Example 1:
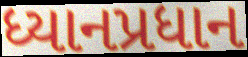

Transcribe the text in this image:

ધ્યાનપ્રધાન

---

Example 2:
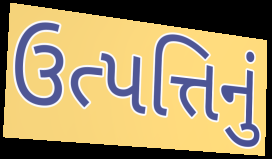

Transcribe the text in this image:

ઉત્પત્તિનું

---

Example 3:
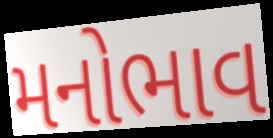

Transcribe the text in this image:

મનોભાવ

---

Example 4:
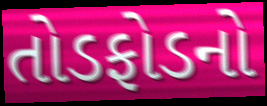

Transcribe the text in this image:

તોડફોડનો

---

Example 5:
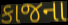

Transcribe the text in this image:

કાજના